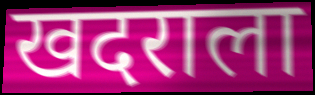
खदराला